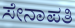
ಸೇನಾಪತಿ